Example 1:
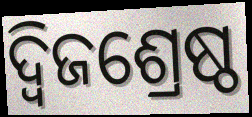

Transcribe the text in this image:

ଦ୍ୱିଜଶ୍ରେଷ୍ଠ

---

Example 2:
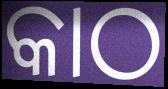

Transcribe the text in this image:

କାଠ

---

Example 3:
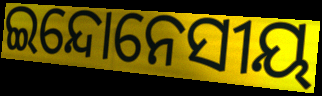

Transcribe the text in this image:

ଇନ୍ଦୋନେସୀୟ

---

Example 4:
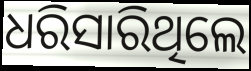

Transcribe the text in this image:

ଧରିସାରିଥିଲେ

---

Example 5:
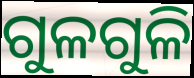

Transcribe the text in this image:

ଗୁଳଗୁଳି